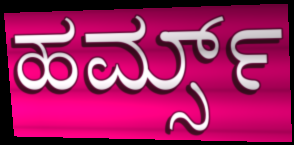
ಹರ್ಮ್ಸ್